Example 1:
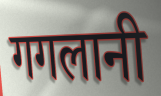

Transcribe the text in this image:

गगलानी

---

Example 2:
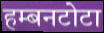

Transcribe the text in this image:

हम्बनटोटा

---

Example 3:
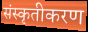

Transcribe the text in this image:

संस्कृतीकरण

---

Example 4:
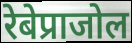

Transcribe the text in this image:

रेबेप्राजोल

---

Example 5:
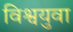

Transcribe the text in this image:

विश्वयुवा